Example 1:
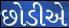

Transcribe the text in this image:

છોડીએ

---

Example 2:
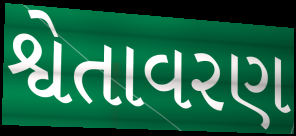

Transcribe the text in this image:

શ્વેતાવરણ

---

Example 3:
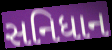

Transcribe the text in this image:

સનિધાન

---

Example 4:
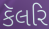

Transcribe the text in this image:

કૅલરિ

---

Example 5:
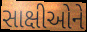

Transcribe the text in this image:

સાક્ષીઓને